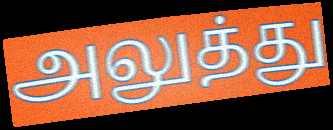
அலுத்து